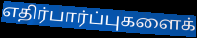
எதிர்பார்ப்புகளைக்